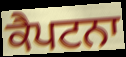
ਕੈਪਟਨਾ